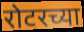
रोटरच्या